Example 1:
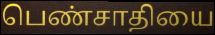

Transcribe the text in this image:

பெண்சாதியை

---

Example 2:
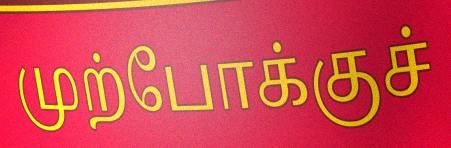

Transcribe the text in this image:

முற்போக்குச்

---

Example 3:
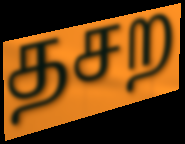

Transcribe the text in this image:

தசற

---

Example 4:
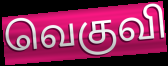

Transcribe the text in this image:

வெகுவி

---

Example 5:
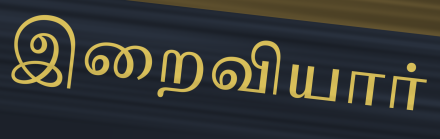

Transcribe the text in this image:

இறைவியார்